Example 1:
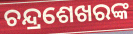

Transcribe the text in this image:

ଚନ୍ଦ୍ରଶେଖରଙ୍କ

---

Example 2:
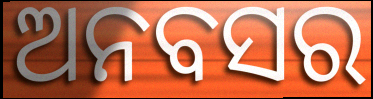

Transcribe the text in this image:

ଅନବସର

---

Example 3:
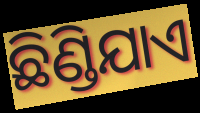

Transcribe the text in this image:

ଛିଣ୍ଡିଯାଏ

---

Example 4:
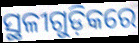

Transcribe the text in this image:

ସ୍ଥଳୀଗୁଡ଼ିକରେ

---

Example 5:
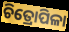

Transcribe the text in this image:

ଚିତ୍ରୋପିଳା